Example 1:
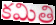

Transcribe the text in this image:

కమితి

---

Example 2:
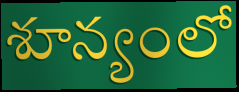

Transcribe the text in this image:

శూన్యంలో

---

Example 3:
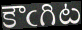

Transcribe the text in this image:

కౌఁగిట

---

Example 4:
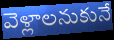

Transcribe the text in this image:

వెళ్లాలనుకునే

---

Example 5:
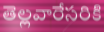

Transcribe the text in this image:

తెల్లవారేసరికి